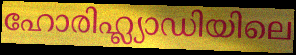
ഹോരിഹ്ല്യാഡിയിലെ